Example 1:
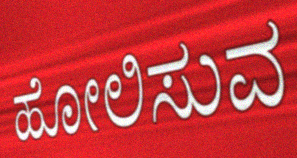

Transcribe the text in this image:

ಹೋಲಿಸುವ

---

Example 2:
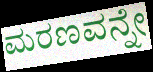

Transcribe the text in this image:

ಮರಣವನ್ನೇ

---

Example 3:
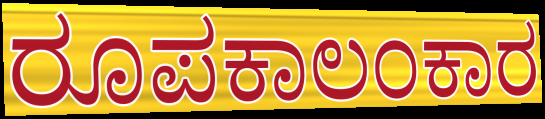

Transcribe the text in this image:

ರೂಪಕಾಲಂಕಾರ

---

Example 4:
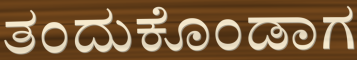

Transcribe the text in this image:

ತಂದುಕೊಂಡಾಗ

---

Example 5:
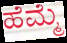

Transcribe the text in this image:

ಹೆಮ್ಮೆ